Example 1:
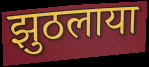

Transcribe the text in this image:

झुठलाया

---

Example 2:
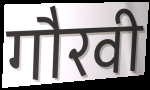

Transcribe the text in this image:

गौरवी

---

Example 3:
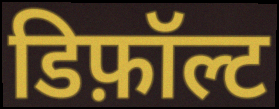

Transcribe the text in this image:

डिफ़ॉल्ट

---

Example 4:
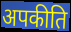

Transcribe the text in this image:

अपकीति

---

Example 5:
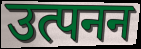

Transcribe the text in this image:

उत्पनन